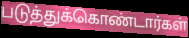
படுத்துக்கொண்டார்கள்